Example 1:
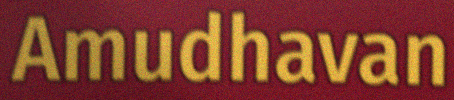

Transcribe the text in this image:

Amudhavan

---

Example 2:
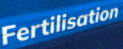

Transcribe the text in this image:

Fertilisation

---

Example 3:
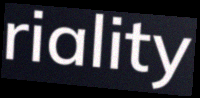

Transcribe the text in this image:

riality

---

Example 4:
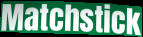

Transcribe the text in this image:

Matchstick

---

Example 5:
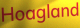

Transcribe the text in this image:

Hoagland